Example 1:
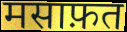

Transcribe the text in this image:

मसाफ़त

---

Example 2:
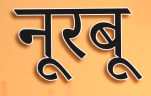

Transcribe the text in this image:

नूरबू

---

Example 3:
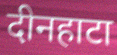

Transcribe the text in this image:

दीनहाटा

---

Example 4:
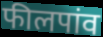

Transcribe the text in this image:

फीलपांव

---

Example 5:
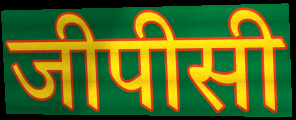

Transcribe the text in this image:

जीपीसी